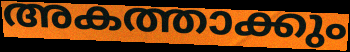
അകത്താക്കും